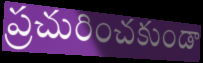
ప్రచురించకుండా